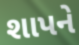
શાપને